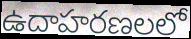
ఉదాహరణలలో